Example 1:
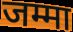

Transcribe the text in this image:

जम्मा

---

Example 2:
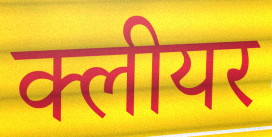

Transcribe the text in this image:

क्लीयर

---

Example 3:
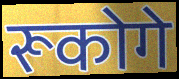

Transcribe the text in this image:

रूकोगे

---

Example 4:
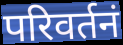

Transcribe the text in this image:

परिवर्तनं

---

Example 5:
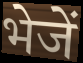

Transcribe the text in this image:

भेजें